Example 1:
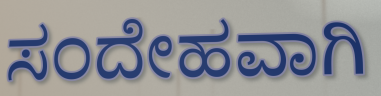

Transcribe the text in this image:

ಸಂದೇಹವಾಗಿ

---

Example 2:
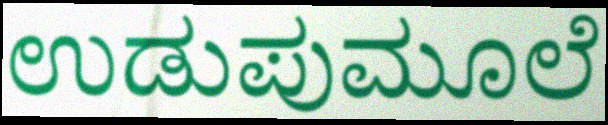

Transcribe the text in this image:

ಉಡುಪುಮೂಲೆ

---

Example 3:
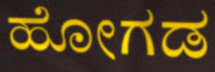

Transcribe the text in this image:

ಹೋಗಡ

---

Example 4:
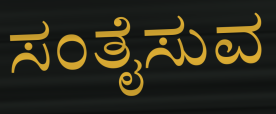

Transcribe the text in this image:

ಸಂತೈಸುವ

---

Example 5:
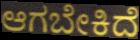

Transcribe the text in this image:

ಆಗಬೇಕಿದೆ